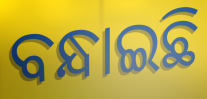
ବନ୍ଧାଇଛି